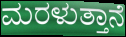
ಮರಳುತ್ತಾನೆ